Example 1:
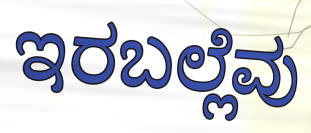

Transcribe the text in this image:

ಇರಬಲ್ಲೆವು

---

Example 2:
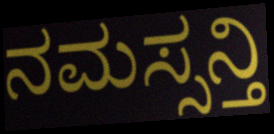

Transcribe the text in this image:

ನಮಸ್ಸನ್ತಿ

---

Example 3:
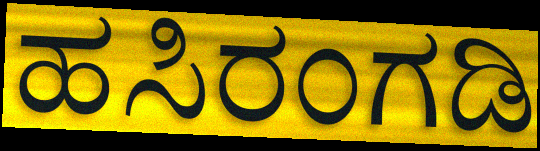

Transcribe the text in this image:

ಹಸಿರಂಗಡಿ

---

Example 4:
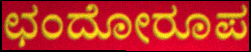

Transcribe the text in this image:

ಛಂದೋರೂಪ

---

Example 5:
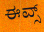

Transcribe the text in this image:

ಈವ್ಸ್